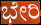
ಭೇರಿ